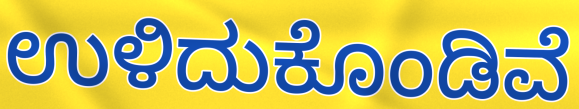
ಉಳಿದುಕೊಂಡಿವೆ